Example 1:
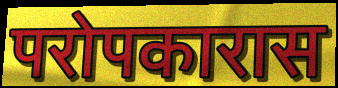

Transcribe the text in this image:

परोपकारास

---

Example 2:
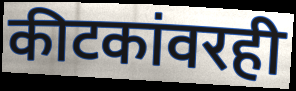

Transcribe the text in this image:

कीटकांवरही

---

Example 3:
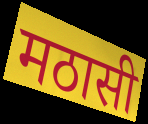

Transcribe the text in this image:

मठासी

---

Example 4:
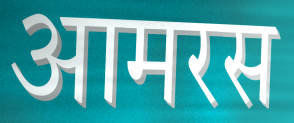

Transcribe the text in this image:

आमरस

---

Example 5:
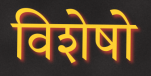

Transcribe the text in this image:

विशेषो